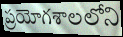
ప్రయోగశాలలోని